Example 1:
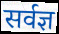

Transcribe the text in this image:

सर्वज्ञ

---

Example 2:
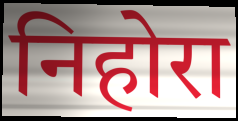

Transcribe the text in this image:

निहोरा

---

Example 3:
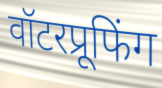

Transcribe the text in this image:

वॉटरप्रूफिंग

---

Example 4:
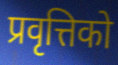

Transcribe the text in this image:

प्रवृत्तिको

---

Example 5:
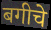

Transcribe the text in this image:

बगीचे